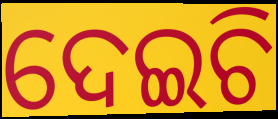
ଦେଇଚି